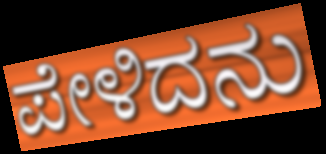
ಪೇಳಿದನು